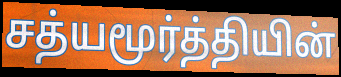
சத்யமூர்த்தியின்